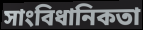
সাংবিধানিকতা